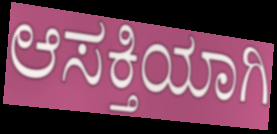
ಆಸಕ್ತಿಯಾಗಿ